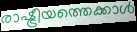
രാഷ്ട്രീയത്തെക്കാൾ